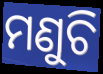
ମଣୁଚି